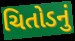
ચિતોડનું